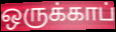
ஒருக்காப்